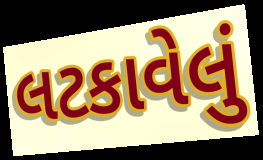
લટકાવેલું